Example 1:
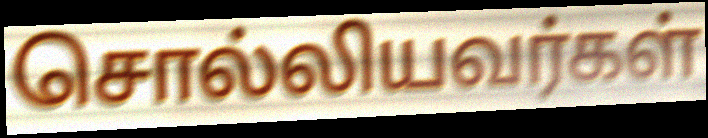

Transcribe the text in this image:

சொல்லியவர்கள்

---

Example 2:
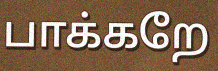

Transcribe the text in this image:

பாக்கறே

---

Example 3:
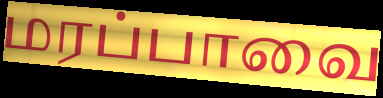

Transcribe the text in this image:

மரப்பாவை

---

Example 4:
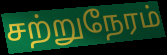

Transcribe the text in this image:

சற்றுநேரம்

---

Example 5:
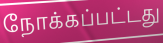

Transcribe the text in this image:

நோக்கப்பட்டது